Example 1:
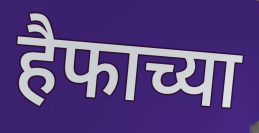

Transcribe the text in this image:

हैफाच्या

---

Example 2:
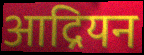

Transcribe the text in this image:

आद्रियन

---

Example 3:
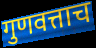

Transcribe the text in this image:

गुणवत्ताच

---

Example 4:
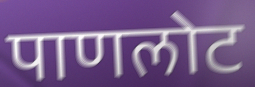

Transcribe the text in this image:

पाणलोट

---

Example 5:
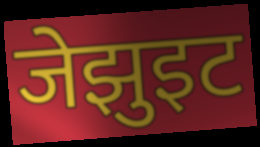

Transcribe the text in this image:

जेझुइट